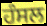
ਹੰਸਲ